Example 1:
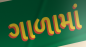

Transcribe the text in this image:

ગાળામાં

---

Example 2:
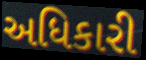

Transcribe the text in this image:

અધિકારી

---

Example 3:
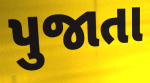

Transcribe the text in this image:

પુજાતા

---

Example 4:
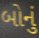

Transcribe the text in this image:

બોનું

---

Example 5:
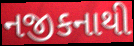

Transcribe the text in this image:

નજીકનાથી